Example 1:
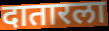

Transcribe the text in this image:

दातारला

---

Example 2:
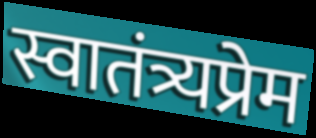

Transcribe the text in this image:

स्वातंत्र्यप्रेम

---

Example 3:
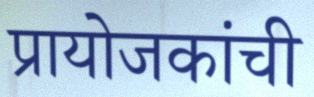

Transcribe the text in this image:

प्रायोजकांची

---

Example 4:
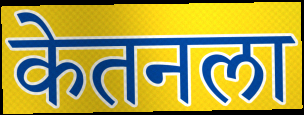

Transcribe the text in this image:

केतनला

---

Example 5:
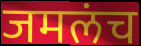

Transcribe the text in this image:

जमलंच